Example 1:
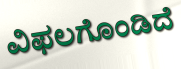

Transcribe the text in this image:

ವಿಫಲಗೊಂಡಿದೆ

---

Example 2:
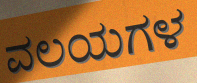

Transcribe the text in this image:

ವಲಯಗಳ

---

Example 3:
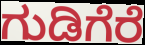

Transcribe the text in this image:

ಗುಡಿಗೆರೆ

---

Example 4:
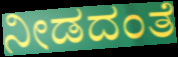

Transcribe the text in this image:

ನೀಡದಂತೆ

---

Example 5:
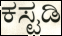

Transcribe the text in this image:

ಕಸ್ಟಡಿ